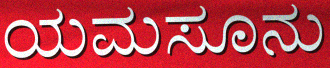
ಯಮಸೂನು